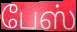
பேஸ்